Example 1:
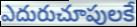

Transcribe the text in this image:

ఎదురుచూపులకే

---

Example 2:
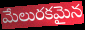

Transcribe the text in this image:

మేలురకమైన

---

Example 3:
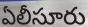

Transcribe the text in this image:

ఏలీసూరు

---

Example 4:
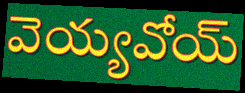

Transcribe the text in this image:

వెయ్యవోయ్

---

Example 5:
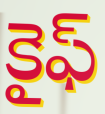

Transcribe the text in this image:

కైఫ్